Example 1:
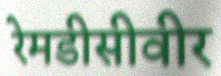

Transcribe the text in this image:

रेमडीसीवीर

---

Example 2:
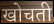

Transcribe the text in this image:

खोचती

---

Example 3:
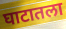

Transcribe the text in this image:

घाटातला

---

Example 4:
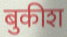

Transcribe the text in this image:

बुकीश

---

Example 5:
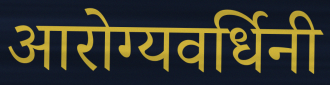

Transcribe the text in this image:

आरोग्यवर्धिनी